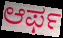
ಆರ್ಫ